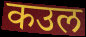
कउल